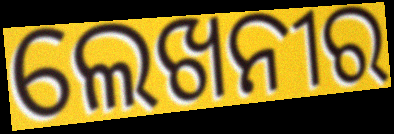
ଲେଖନୀର